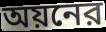
অয়নের